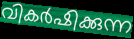
വികർഷിക്കുന്ന